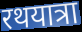
रथयात्रा